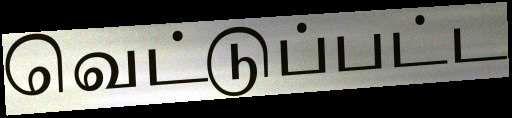
வெட்டுப்பட்ட